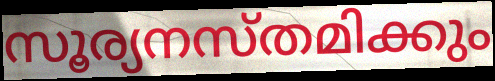
സൂര്യനസ്തമിക്കും